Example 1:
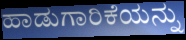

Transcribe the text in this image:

ಹಾಡುಗಾರಿಕೆಯನ್ನು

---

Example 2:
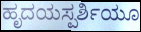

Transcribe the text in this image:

ಹೃದಯಸ್ಪರ್ಶಿಯೂ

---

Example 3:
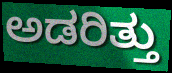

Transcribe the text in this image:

ಅಡರಿತ್ತು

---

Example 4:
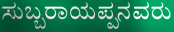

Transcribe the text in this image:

ಸುಬ್ಬರಾಯಪ್ಪನವರು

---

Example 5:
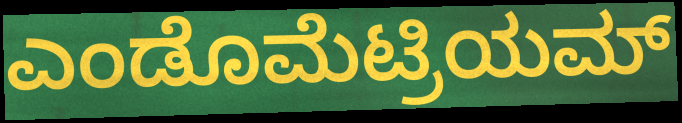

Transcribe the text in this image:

ಎಂಡೊಮೆಟ್ರಿಯಮ್